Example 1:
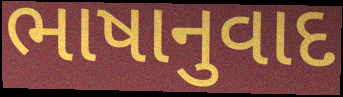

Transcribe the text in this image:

ભાષાનુવાદ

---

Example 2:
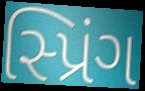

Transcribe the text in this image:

સ્પ્રિંગ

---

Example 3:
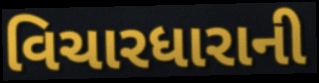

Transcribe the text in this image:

વિચારધારાની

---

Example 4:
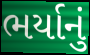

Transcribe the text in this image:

ભર્યાનું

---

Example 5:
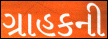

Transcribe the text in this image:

ગ્રાહકની